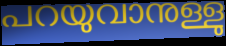
പറയുവാനുള്ളു